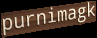
purnimagk